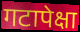
गटापेक्षा